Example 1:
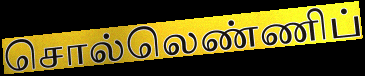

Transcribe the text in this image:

சொல்லெண்ணிப்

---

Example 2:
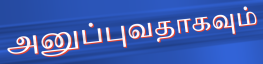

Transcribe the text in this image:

அனுப்புவதாகவும்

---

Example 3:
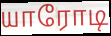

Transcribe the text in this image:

யாரோடி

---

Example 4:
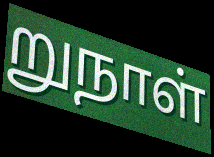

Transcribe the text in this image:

றுநாள்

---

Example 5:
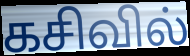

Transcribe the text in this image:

கசிவில்